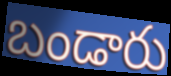
బండారు